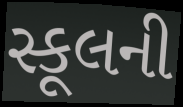
સ્કૂલની